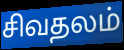
சிவதலம்